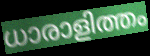
ധാരാളിത്തം